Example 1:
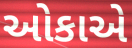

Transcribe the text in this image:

ઓકાએ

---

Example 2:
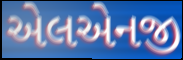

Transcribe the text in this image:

એલએનજી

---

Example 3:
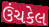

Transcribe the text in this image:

ઉંચકેલ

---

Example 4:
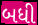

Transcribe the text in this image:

બધી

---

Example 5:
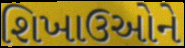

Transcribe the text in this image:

શિખાઉઓને